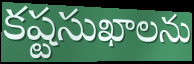
కష్టసుఖాలను